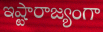
ఇష్టారాజ్యంగా